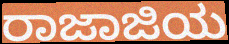
ರಾಜಾಜಿಯ